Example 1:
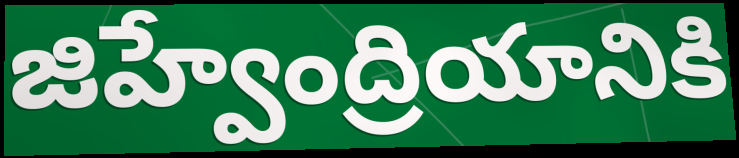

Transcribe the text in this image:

జిహ్వేంద్రియానికి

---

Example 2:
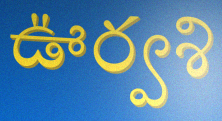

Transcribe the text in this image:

ఊర్వశి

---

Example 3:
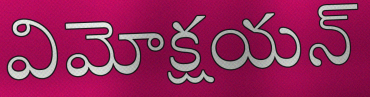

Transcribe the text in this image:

విమోక్షయన్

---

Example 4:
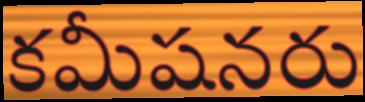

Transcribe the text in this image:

కమీషనరు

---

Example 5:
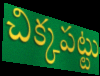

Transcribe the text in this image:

చిక్కపట్టు